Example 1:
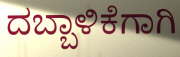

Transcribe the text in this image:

ದಬ್ಬಾಳಿಕೆಗಾಗಿ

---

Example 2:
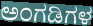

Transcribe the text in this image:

ಅಂಗಡಿಗಳ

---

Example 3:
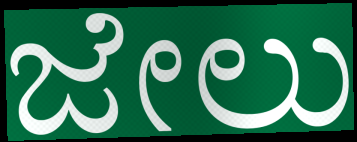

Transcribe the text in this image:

ಜೇಲು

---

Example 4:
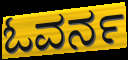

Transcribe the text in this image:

ಓವರ್ನ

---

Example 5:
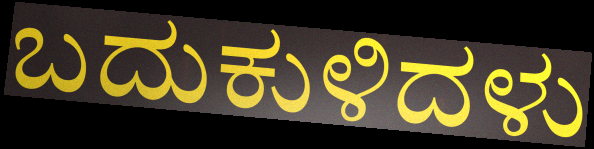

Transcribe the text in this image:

ಬದುಕುಳಿದಳು